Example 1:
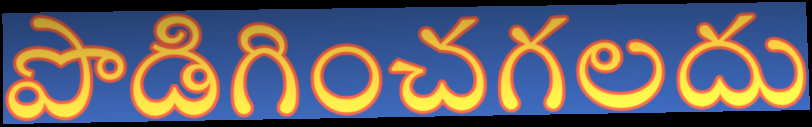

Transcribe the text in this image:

పొడిగించగలదు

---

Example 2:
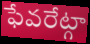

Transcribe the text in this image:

ఫేవరేట్గా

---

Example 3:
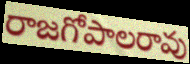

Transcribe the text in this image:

రాజగోపాలరావు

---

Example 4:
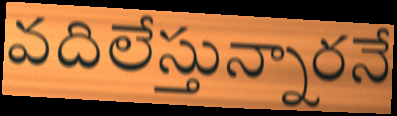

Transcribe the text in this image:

వదిలేస్తున్నారనే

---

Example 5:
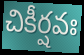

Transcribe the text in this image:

చికీర్షవః